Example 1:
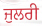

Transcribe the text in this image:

ਜੁਲਰੀ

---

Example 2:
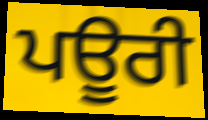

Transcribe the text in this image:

ਪਊਰੀ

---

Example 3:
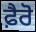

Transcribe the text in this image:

ਫ਼ੈਰੋ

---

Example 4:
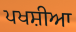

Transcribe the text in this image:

ਪਖਸ਼ੀਆ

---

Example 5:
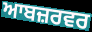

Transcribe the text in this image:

ਆਬਜ਼ਰਵਰ